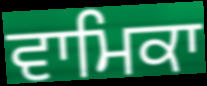
ਵਾਮਿਕਾ